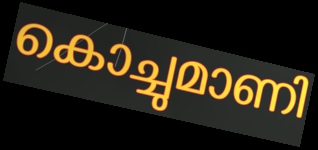
കൊച്ചുമാണി